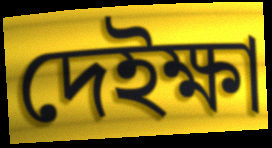
দেইক্ষা